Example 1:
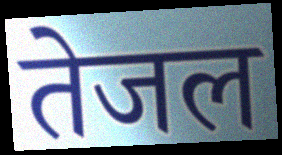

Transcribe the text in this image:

तेजल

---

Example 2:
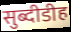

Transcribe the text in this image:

सुब्दीडीह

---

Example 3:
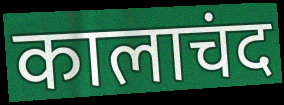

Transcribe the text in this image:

कालाचंद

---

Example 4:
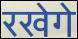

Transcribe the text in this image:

रखेगे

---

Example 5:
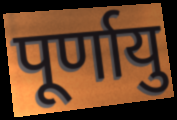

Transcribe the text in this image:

पूर्णायु